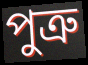
পুত্রু